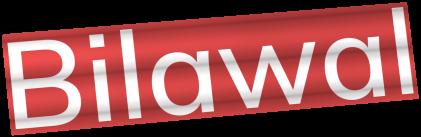
Bilawal